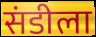
संडीला